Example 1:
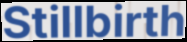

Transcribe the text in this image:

Stillbirth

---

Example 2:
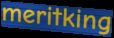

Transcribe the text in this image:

meritking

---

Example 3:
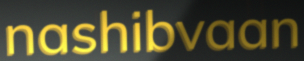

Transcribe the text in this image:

nashibvaan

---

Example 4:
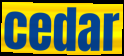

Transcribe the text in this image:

cedar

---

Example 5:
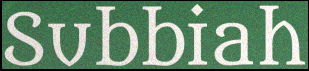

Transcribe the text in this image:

Subbiah